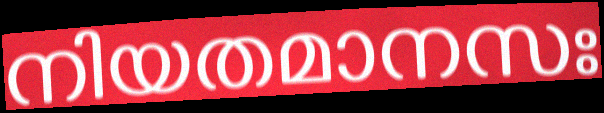
നിയതമാനസഃ